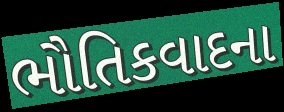
ભૌતિકવાદના